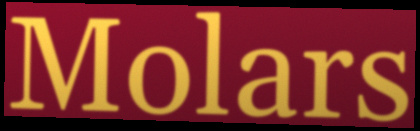
Molars